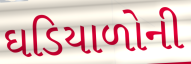
ઘડિયાળોની